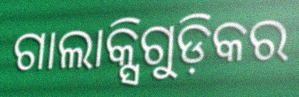
ଗାଲାକ୍ସିଗୁଡ଼ିକର